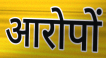
आरोपों